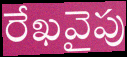
రేఖవైపు